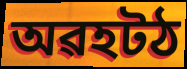
অৱহটঠ